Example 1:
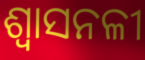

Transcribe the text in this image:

ଶ୍ଵାସନଳୀ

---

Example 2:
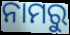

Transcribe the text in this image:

ନାମରୁ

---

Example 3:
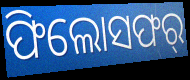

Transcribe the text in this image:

ଫିଲୋସଫର୍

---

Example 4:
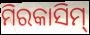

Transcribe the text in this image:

ମିରକାସିମ୍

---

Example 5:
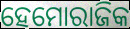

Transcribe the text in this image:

ହେମୋରାଜିକ